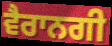
ਵੈਰਾਨਗੀ